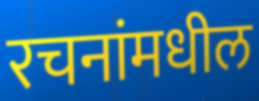
रचनांमधील